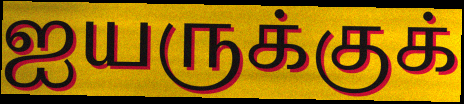
ஐயருக்குக்